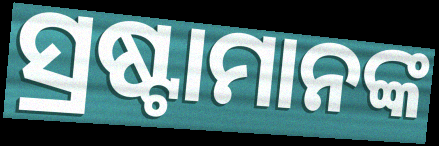
ସ୍ରଷ୍ଟାମାନଙ୍କ